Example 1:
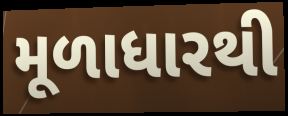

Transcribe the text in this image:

મૂળાધારથી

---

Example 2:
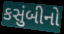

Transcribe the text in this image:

કસુંબીનો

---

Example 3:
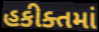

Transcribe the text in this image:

હકીક્તમાં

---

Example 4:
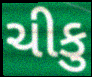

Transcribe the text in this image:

ચીકુ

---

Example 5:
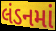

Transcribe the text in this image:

લંડનમાં